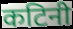
कटिनी